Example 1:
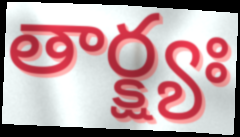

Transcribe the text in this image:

తార్క్ష్యః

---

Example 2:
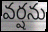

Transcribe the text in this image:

వర్షను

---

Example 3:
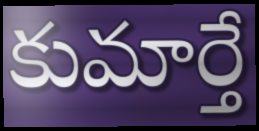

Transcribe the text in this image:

కుమార్తే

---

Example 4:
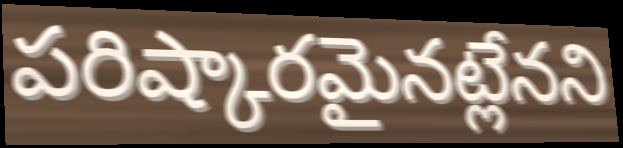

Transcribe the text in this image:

పరిష్కారమైనట్లేనని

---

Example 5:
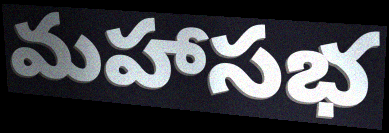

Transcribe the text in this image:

మహాసభ